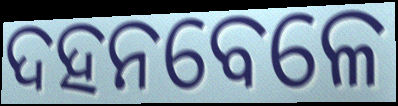
ଦହନବେଳେ